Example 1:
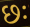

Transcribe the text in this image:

છઃ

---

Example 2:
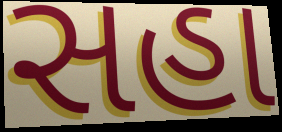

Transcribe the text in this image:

સહા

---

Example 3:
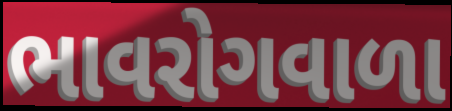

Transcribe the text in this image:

ભાવરોગવાળા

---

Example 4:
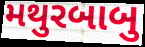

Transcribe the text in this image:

મથુરબાબુ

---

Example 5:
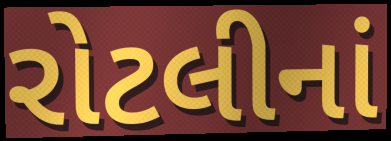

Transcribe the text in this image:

રોટલીનાં